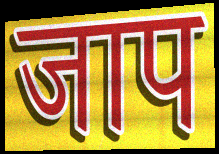
जाप